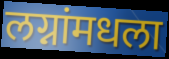
लग्नांमधला